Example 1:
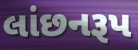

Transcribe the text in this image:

લાંછનરૂપ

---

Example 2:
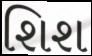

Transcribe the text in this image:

શિશ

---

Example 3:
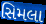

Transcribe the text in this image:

સિમલા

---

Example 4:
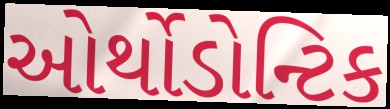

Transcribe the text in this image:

ઓર્થોડોન્ટિક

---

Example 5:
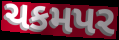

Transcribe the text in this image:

ચકમપર